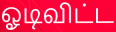
ஓடிவிட்ட